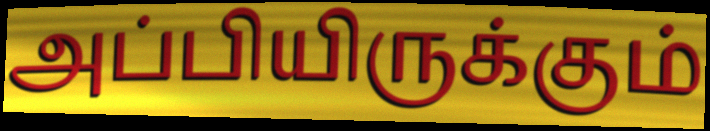
அப்பியிருக்கும்